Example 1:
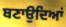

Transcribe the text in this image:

ਬਣਾਉਦਿਆਂ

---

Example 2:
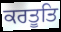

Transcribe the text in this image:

ਕਰਤੂਤਿ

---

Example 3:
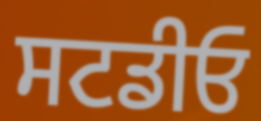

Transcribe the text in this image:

ਸਟਡੀਓ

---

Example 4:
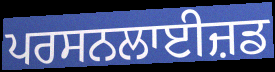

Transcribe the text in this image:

ਪਰਸਨਲਾਈਜ਼ਡ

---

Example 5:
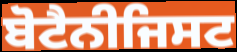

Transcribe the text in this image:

ਬੋਟੈਨੀਜਿਸਟ